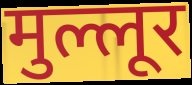
मुल्लूर